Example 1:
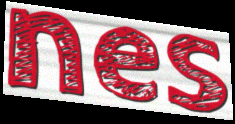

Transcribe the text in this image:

nes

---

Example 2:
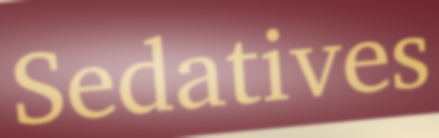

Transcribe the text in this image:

Sedatives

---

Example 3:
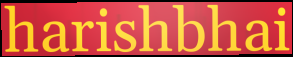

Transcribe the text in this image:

harishbhai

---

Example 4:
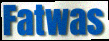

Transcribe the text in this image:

Fatwas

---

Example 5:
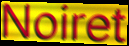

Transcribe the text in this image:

Noiret